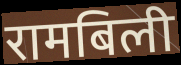
रामबिली